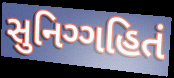
સુનિગ્ગહિતં